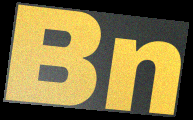
Bn